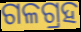
ଗଳଗ୍ରହ